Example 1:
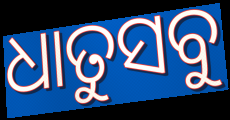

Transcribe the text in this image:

ଧାତୁସବୁ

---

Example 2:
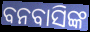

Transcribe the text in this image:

ବନବାସିଙ୍କ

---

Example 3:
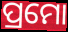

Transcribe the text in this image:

ପ୍ରମୋ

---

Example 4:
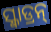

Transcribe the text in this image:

ସ୍କ୍ୱାଡ୍ରନ୍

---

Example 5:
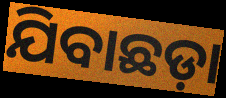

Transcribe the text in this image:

ଯିବାଛଡ଼ା